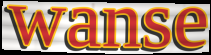
wanse